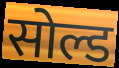
सोल्ड